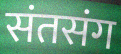
संतसंग